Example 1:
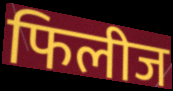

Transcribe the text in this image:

फिलीज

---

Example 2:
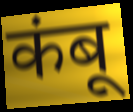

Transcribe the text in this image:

कंबू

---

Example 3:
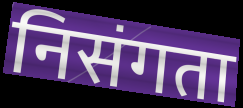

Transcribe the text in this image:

निसंगता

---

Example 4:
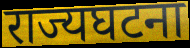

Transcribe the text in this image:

राज्यघटना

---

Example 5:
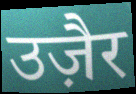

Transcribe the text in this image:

उज़ैर